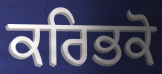
ਕਰਿਭਕੋ